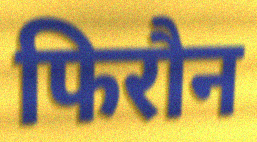
फिरौन